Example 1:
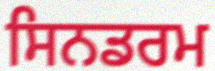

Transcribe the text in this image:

ਸਿਨਡਰਮ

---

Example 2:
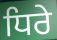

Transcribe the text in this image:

ਧਿਰੇ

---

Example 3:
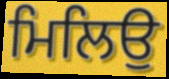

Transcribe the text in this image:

ਮਿਲਿਉ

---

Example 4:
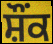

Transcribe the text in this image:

ਸ਼ੌਂਕ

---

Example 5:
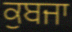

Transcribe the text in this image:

ਕੁਬਜਾ